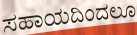
ಸಹಾಯದಿಂದಲೂ